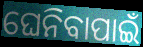
ଘେନିବାପାଇଁ